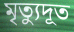
মৃত্যুদূত